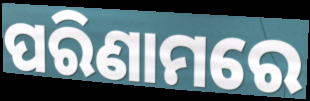
ପରିଣାମରେ